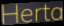
Herta